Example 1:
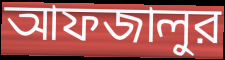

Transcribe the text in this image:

আফজালুর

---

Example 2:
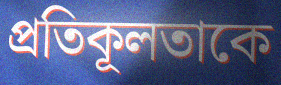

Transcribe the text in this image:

প্রতিকূলতাকে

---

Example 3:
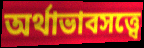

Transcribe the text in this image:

অর্থাভাবসত্ত্বে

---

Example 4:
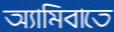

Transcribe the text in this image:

অ্যামিবাতে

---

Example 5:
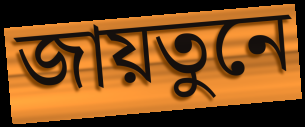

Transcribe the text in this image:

জায়তুনে